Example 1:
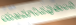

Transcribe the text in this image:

యజమానిదవుతుంది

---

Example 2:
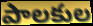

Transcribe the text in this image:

పాలకుల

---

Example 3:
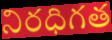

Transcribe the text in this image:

నిరధిగత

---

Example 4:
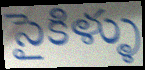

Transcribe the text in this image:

సైకిళ్ళు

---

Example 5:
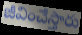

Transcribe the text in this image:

జీవించేస్తారు